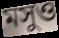
মসুও